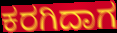
ಕರಗಿದಾಗ